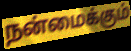
நன்மைக்கும்